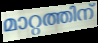
മാറ്റത്തിന്